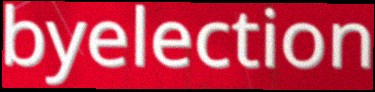
byelection